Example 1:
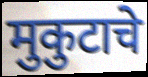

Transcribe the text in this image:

मुकुटाचे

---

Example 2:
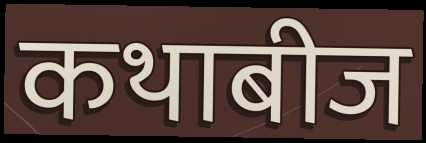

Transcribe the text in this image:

कथाबीज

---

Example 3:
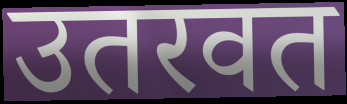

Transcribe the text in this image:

उतरवत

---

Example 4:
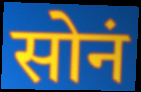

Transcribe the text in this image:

सोनं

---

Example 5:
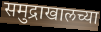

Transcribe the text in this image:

समुद्राखालच्या